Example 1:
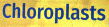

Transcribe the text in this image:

Chloroplasts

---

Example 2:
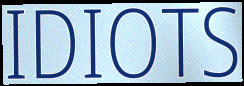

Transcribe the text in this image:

IDIOTS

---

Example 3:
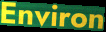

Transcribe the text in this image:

Environ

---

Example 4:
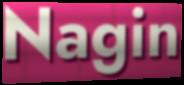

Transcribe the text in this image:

Nagin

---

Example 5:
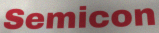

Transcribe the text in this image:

Semicon